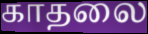
காதலை